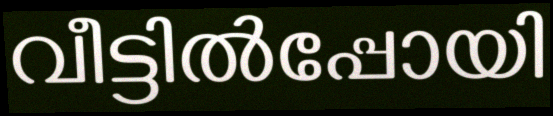
വീട്ടിൽപ്പോയി